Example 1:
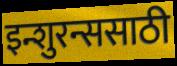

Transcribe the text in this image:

इन्शुरन्ससाठी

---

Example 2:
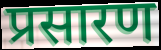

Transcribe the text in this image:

प्रसारण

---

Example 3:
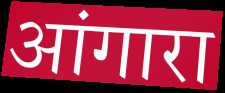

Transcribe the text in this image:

आंगारा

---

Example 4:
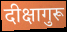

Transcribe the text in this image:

दीक्षागुरू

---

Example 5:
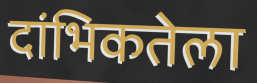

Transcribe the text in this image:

दांभिकतेला